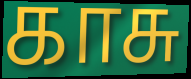
காசு